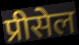
प्रीसेल